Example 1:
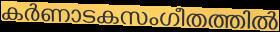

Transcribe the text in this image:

കർണാടകസംഗീതത്തിൽ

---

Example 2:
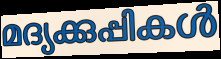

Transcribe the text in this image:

മദ്യക്കുപ്പികൾ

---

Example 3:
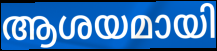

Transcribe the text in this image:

ആശയമായി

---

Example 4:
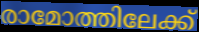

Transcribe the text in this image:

രാമോത്തിലേക്ക്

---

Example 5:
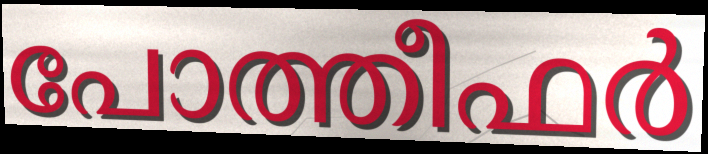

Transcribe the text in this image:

പോത്തീഫർ